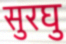
सुरघु